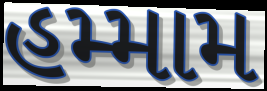
હમ્મામ